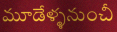
మూడేళ్ళనుంచీ